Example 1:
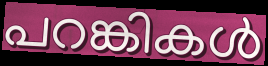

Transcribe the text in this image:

പറങ്കികൾ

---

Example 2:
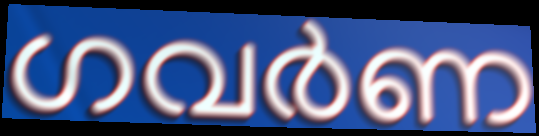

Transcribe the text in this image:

ഗവർണ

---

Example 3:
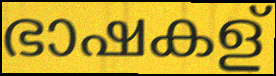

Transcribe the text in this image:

ഭാഷകള്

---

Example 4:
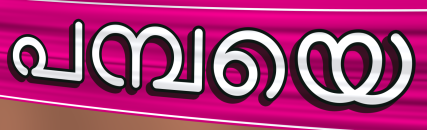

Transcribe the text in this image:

പമ്പയെ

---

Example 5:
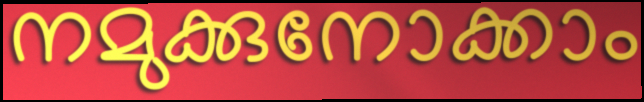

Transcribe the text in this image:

നമുക്കുനോക്കാം